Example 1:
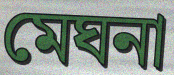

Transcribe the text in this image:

মেঘনা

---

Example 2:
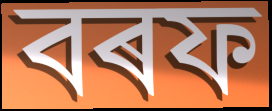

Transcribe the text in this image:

বৰফ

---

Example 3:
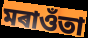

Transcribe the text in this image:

মৰাওঁতা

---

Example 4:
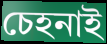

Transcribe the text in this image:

চেহনাই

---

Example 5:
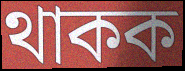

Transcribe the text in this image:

থাকক